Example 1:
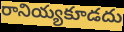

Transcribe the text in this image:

రానియ్యకూడదు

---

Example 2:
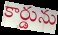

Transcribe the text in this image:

కార్డును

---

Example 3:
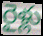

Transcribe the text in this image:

రైళ్లు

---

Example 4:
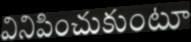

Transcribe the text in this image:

వినిపించుకుంటూ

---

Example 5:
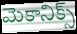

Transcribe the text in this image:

మెకానిక్స్